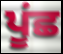
ਪੂਂਛ